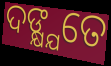
ଦଙ୍କ୍ଷ୍ଯତେ